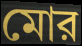
মোর